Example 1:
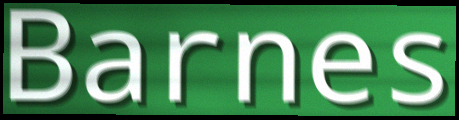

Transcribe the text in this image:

Barnes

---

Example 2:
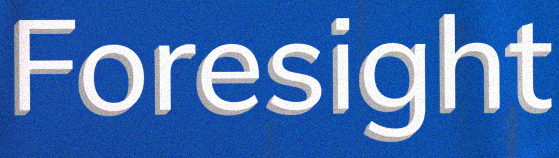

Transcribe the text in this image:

Foresight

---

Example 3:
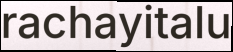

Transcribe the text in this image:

rachayitalu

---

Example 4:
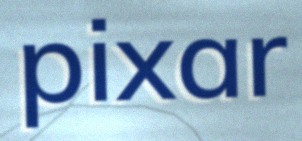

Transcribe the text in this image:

pixar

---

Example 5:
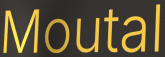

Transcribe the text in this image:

Moutal